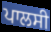
ਪਾਲਸੀ